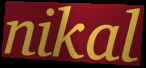
nikal